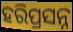
ହରିପ୍ରସନ୍ନ